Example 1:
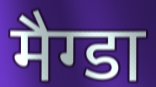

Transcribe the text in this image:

मैग्डा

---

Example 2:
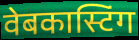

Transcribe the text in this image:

वेबकास्टिंग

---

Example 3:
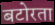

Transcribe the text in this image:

बटोरता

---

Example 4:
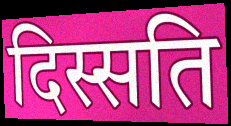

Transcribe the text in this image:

दिस्सति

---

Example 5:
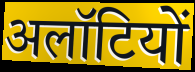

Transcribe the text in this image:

अलॉटियों